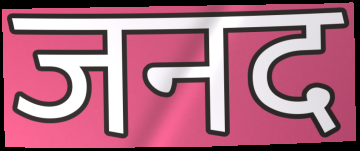
जनद